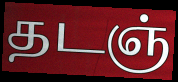
தடஞ்